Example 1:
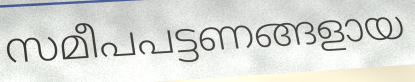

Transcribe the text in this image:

സമീപപട്ടണങ്ങളായ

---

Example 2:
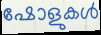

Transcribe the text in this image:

ഷോളുകൾ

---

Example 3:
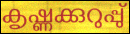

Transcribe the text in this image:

കൃഷ്ണക്കുറുപ്പു്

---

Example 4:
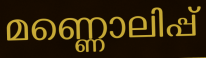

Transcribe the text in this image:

മണ്ണൊലിപ്പ്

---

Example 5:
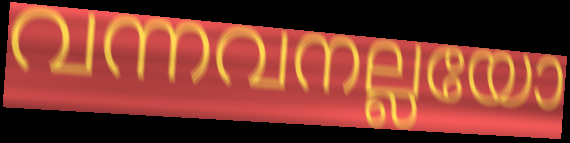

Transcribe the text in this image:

വന്നവനല്ലയോ